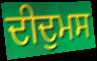
ਦੀਦੁਮਸ